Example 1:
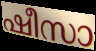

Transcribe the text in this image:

ഷീസാ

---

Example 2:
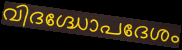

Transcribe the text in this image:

വിദഗ്ദ്ധോപദേശം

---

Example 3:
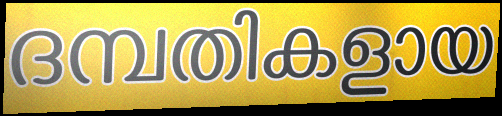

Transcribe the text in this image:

ദമ്പതികളായ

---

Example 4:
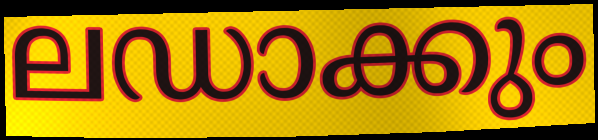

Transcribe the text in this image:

ലഡാക്കും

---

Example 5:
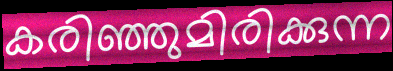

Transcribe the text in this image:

കരിഞ്ഞുമിരിക്കുന്ന